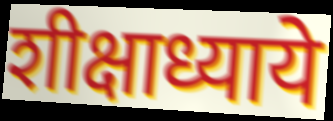
शीक्षाध्याये